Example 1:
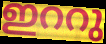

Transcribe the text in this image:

ഇററു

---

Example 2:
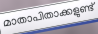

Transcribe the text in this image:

മാതാപിതാക്കളുണ്ട്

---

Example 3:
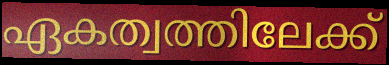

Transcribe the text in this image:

ഏകത്വത്തിലേക്ക്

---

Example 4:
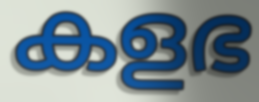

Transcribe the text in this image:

കളഭ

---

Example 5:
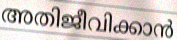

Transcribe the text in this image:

അതിജീവിക്കാൻ